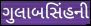
ગુલાબસિંહની